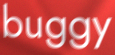
buggy